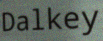
Dalkey